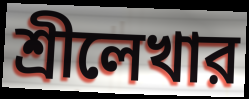
শ্রীলেখার